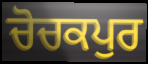
ਚੋਚਕਪੁਰ